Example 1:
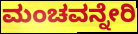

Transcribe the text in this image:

ಮಂಚವನ್ನೇರಿ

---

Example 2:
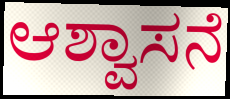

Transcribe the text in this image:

ಆಶ್ವಾಸನೆ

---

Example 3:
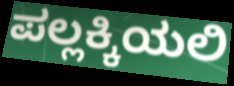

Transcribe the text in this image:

ಪಲ್ಲಕ್ಕಿಯಲಿ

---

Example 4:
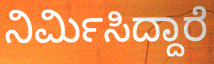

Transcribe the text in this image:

ನಿರ್ಮಿಸಿದ್ದಾರೆ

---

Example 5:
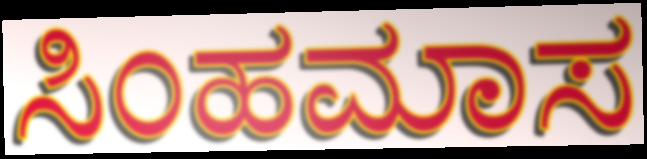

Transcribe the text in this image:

ಸಿಂಹಮಾಸ